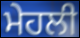
ਮੇਹਲੀ